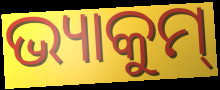
ଭ୍ୟାକୁମ୍